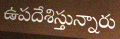
ఉపదేశిస్తున్నారు